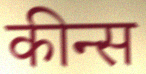
कीन्स